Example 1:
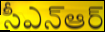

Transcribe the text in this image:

సీఎన్ఆర్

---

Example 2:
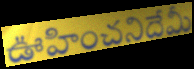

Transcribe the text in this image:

ఊహించనిదేమీ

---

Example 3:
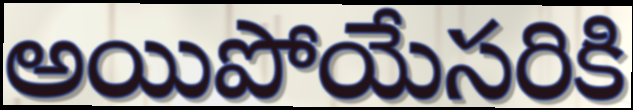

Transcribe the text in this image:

అయిపోయేసరికి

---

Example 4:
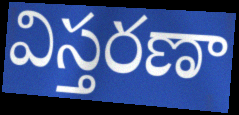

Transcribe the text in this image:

విస్తరణా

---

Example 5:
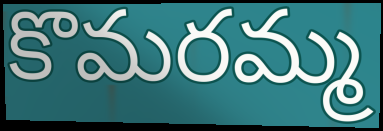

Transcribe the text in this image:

కొమరమ్మ